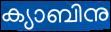
ക്യാബിനു